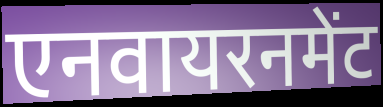
एनवायरनमेंट